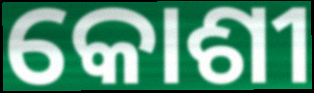
କୋଶୀ